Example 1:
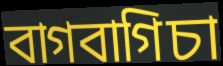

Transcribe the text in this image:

বাগবাগিচা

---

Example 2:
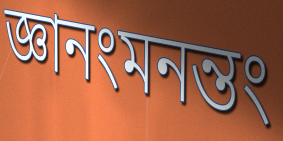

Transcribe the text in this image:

জ্ঞানংমনন্তং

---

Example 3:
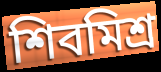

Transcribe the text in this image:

শিবমিশ্র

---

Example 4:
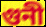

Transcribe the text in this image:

গুনী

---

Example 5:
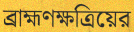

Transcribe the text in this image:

ব্রাহ্মণক্ষত্রিয়ের